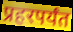
प्रहरपर्यंत